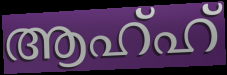
ആഹ്ഹ്